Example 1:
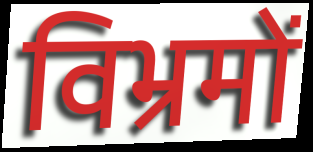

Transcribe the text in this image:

विभ्रमों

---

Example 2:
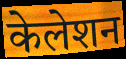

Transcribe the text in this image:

केलेशन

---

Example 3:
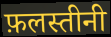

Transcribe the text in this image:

फ़लस्तीनी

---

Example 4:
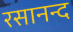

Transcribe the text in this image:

रसानन्द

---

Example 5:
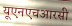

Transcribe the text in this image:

यूएनएचआरसी